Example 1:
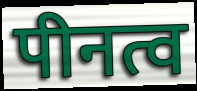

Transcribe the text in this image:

पीनत्व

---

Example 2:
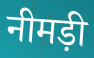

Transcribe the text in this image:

नीमड़ी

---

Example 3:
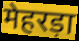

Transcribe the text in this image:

मेहरड़ा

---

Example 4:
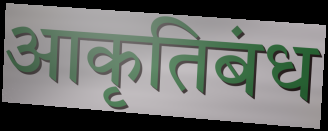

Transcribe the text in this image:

आकृतिबंध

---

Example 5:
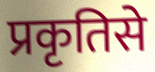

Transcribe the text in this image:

प्रकृतिसे